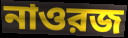
নাওরজ